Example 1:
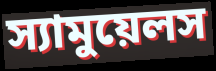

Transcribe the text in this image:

স্যামুয়েলস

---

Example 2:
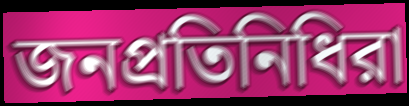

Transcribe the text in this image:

জনপ্রতিনিধিরা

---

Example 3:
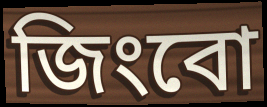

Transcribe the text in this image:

জিংবো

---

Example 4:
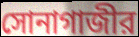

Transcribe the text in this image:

সোনাগাজীর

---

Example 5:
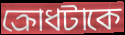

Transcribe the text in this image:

ক্রোধটাকে